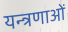
यन्त्रणाओं